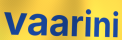
vaarini